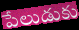
పేలుడుకు